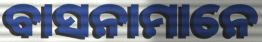
ବାସନାମାନେ